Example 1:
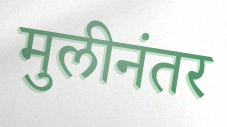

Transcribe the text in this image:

मुलीनंतर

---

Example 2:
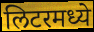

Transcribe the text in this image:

लिटरमध्ये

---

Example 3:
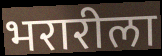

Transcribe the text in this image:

भरारीला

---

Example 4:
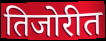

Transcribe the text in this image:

तिजोरीत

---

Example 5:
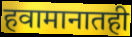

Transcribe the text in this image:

हवामानातही